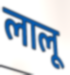
लालू